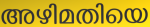
അഴിമതിയെ